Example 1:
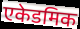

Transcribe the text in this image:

एकेडमिक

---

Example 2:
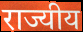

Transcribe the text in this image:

राज्‍यीय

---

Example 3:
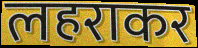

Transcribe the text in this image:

लहराकर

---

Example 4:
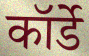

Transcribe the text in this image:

कॉर्डे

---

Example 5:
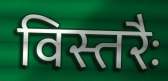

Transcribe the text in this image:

विस्तरैः